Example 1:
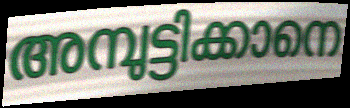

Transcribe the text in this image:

അമ്പുട്ടിക്കാനെ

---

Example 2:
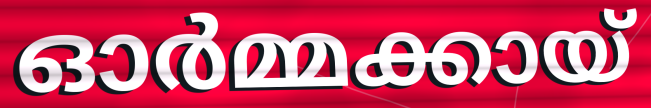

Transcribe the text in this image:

ഓർമ്മക്കായ്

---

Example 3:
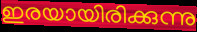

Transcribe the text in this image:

ഇരയായിരിക്കുന്നു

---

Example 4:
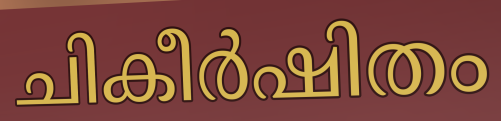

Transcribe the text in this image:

ചികീർഷിതം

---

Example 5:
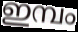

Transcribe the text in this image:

ഇമ്പം